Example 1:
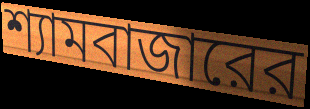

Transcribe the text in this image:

শ্যামবাজারের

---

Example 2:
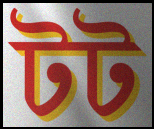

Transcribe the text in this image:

টট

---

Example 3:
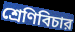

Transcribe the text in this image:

শ্রেণিবিচার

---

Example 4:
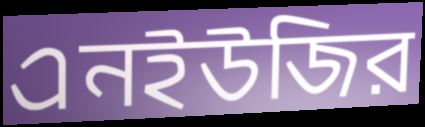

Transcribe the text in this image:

এনইউজির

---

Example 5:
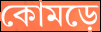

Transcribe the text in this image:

কোমড়ে